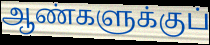
ஆண்களுக்குப்